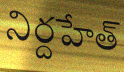
నిర్దహేత్